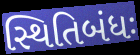
સ્થિતિબંધઃ